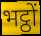
भट्ठों